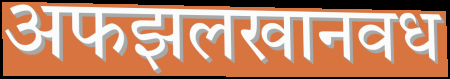
अफझलखानवध